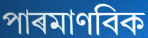
পাৰমাণবিক